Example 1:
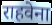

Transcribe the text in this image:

राहवेना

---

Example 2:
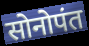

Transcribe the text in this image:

सोनोपंत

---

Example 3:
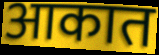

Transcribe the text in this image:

आकात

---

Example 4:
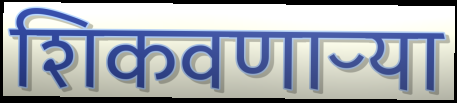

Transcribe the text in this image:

शिकवणाऱ्या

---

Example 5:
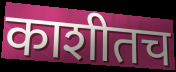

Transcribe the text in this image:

काशीतच